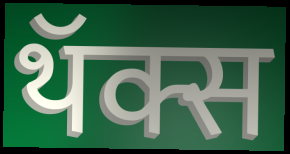
थॅक्स